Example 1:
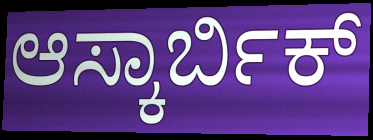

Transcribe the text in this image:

ಆಸ್ಕಾರ್ಬಿಕ್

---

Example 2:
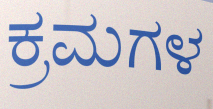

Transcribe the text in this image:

ಕ್ರಮಗಳ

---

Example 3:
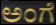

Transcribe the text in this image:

ಅಂಗೆ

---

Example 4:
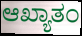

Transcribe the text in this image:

ಆಖ್ಯಾತಂ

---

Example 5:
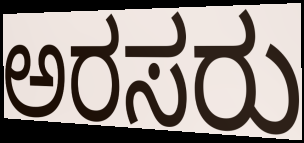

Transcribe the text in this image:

ಅರಸರು